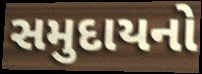
સમુદાયનો